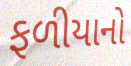
ફળીયાનો